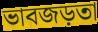
ভাবজড়তা